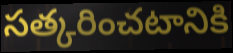
సత్కరించటానికి